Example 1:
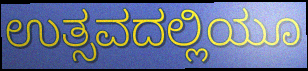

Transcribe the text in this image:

ಉತ್ಸವದಲ್ಲಿಯೂ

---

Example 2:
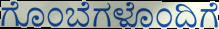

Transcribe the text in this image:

ಗೊಂಬೆಗಳೊಂದಿಗೆ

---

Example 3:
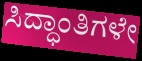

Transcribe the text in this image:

ಸಿದ್ಧಾಂತಿಗಳೇ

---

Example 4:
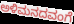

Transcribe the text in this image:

ಅಳಿಮನದವಂಗೆ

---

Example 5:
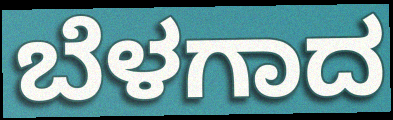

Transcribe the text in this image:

ಬೆಳಗಾದ